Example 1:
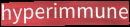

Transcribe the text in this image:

hyperimmune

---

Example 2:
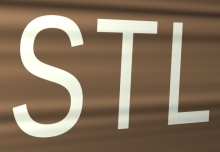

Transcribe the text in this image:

STL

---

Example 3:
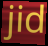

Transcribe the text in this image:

jid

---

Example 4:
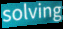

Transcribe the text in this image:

solving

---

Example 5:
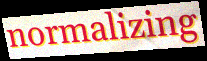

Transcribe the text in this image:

normalizing